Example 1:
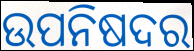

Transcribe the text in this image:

ଉପନିଷଦର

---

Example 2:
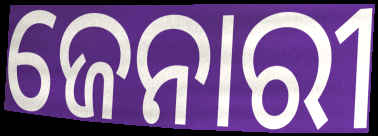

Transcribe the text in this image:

ଜେନାରୀ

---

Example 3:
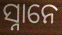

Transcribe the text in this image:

ସ୍ନାନେ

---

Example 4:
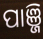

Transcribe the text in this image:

ପାଞ୍ଜି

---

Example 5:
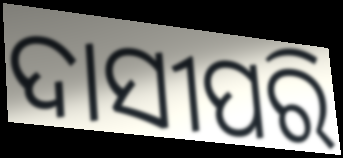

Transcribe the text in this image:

ଦାସୀପରି